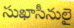
సుఖాసీనులై